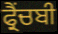
ਫ੍ਰੈਂਚਬੀ